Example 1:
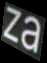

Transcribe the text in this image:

za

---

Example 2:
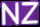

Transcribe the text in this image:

NZ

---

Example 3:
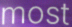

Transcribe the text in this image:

most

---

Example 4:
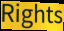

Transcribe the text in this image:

Rights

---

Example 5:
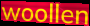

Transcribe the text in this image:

woollen